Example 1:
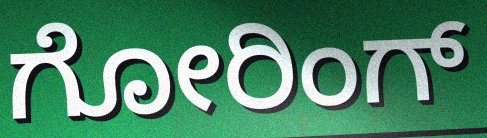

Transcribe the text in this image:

ಗೋರಿಂಗ್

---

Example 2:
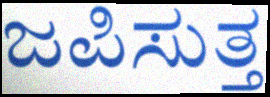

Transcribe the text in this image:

ಜಪಿಸುತ್ತ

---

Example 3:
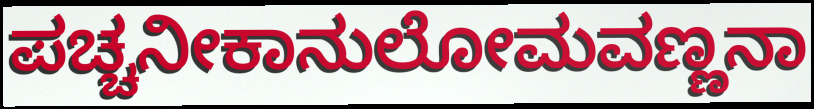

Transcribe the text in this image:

ಪಚ್ಚನೀಕಾನುಲೋಮವಣ್ಣನಾ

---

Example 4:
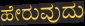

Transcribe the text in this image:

ಹೇರುವುದು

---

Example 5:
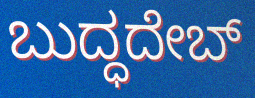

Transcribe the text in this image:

ಬುದ್ಧದೇಬ್